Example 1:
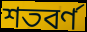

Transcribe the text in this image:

শতবর্ণ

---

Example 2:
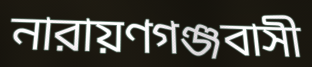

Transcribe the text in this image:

নারায়ণগঞ্জবাসী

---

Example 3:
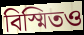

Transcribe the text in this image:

বিস্মিতও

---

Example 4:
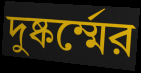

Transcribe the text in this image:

দুষ্কর্ম্মের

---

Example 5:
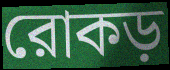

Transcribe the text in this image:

রোকড়